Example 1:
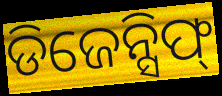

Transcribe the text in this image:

ଡିଜେନ୍ସିଫ୍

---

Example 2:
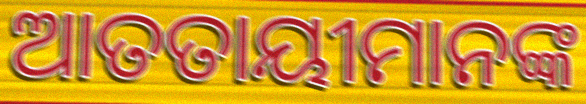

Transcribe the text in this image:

ଆତତାୟୀମାନଙ୍କ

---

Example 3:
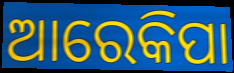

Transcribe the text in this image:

ଆରେକିପା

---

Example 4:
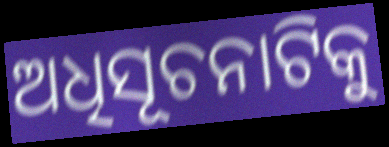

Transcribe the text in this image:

ଅଧିସୂଚନାଟିକୁ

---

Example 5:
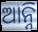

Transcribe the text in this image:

ଆନ୍ନି